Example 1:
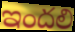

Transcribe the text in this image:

ఇందలి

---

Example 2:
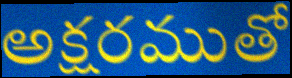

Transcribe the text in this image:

అక్షరముతో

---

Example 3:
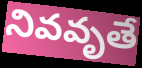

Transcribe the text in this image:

నివవృతే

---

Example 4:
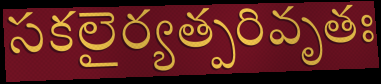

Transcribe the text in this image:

సకలైర్యత్పరివృతః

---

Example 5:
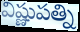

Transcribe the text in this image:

విష్ణుపత్ని